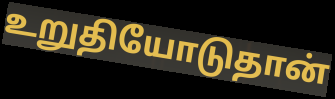
உறுதியோடுதான்